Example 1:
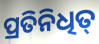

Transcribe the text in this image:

ପ୍ରତିନିଧିତ୍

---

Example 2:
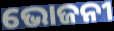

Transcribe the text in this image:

ଭୋଜନୀ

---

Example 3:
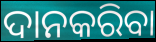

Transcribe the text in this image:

ଦାନକରିବା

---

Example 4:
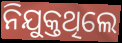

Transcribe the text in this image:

ନିଯୁକ୍ତଥିଲେ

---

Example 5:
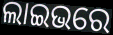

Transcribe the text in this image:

ଲାଇଭରେ